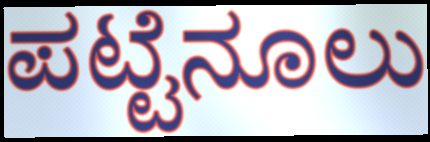
ಪಟ್ಟೆನೂಲು